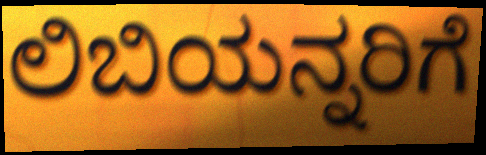
ಲಿಬಿಯನ್ನರಿಗೆ